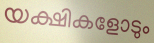
യക്ഷികളോടും